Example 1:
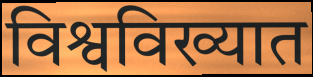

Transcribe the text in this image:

विश्वविख्यात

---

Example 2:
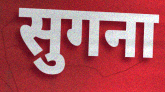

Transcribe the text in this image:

सुगना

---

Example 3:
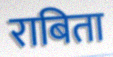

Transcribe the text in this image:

राबिता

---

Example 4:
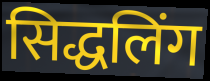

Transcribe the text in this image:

सिद्धलिंग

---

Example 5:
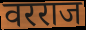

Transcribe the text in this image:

वरराज